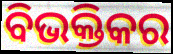
ବିଭକ୍ତିକର